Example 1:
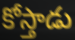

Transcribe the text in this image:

కోస్తాడు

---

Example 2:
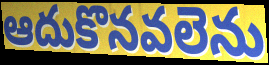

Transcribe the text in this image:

ఆదుకొనవలెను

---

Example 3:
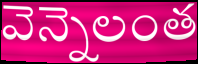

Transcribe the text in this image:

వెన్నెలంత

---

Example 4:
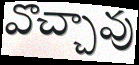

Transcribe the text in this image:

వొచ్చావు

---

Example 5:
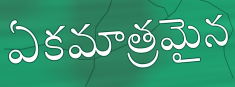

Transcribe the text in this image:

ఏకమాత్రమైన